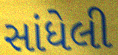
સાંધેલી